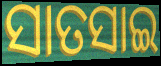
ସାତସାଇ